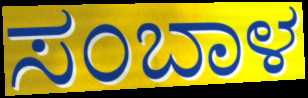
ಸಂಬಾಳ